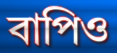
বাপিও